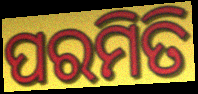
ପରମିତି